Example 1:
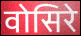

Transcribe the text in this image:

वोसिरे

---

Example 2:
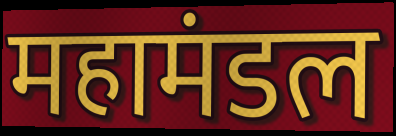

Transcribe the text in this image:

महामंडल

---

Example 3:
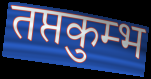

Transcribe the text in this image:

तप्तकुम्भ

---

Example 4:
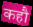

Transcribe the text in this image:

कहौ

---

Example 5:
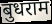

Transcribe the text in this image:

बुधराम